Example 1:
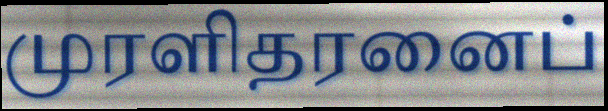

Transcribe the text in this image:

முரளிதரனைப்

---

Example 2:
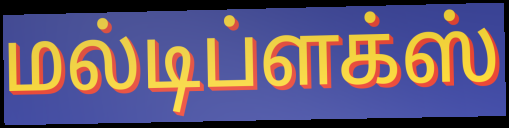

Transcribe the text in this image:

மல்டிப்ளக்ஸ்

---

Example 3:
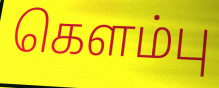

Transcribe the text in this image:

கௌம்பு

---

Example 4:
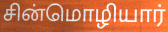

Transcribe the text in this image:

சின்மொழியார்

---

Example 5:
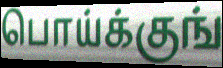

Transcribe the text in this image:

பொய்க்குங்